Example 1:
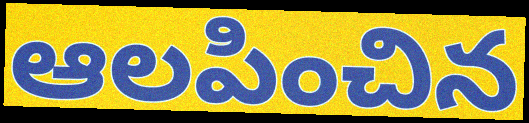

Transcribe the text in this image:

ఆలపించిన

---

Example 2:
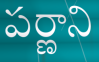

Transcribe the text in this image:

పర్ణాని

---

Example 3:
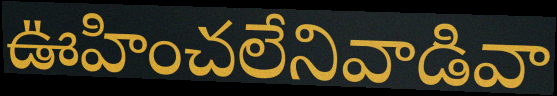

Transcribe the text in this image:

ఊహించలేనివాడివా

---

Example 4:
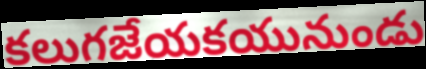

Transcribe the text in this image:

కలుగజేయకయునుండు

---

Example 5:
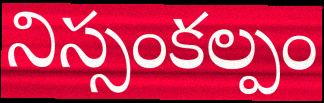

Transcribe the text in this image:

నిస్సంకల్పం